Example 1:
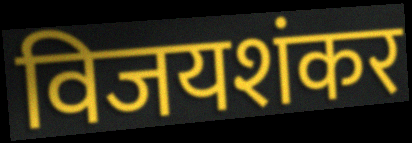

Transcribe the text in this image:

विजयशंकर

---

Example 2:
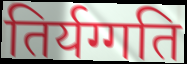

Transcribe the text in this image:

तिर्यग्गति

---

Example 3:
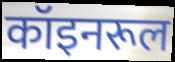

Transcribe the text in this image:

कॉइनरूल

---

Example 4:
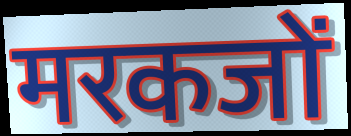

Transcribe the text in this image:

मरकजों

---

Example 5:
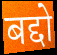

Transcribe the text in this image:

बद्दो